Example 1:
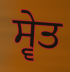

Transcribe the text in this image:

ਸ੍ਵੇਤ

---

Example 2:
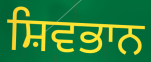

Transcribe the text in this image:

ਸ਼ਿਵਭਾਨ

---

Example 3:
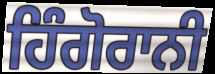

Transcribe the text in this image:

ਹਿੰਗੋਰਾਨੀ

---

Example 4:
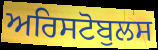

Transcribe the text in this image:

ਅਰਿਸਟੋਬੁਲਸ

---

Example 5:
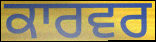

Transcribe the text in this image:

ਕਾਰਵਰ